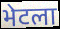
भेटला